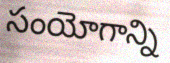
సంయోగాన్ని